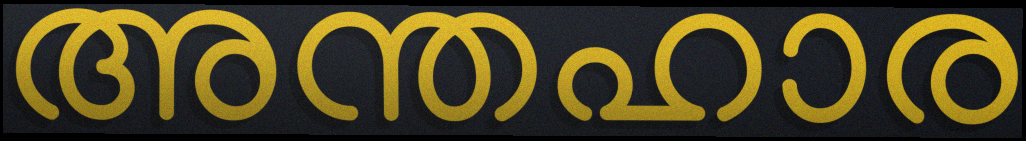
അന്തഹാര